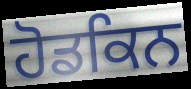
ਹੋਡਕਿਨ